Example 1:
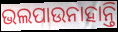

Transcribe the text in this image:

ଭଲପାଉନାହାନ୍ତି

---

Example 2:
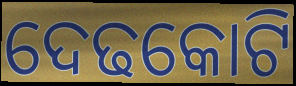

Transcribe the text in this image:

ଦେଢକୋଟି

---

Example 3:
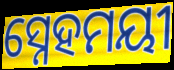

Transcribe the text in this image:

ସ୍ନେହମୟୀ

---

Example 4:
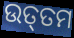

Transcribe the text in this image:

ଉତ୍‌ତମ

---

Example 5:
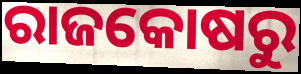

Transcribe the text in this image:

ରାଜକୋଷରୁ